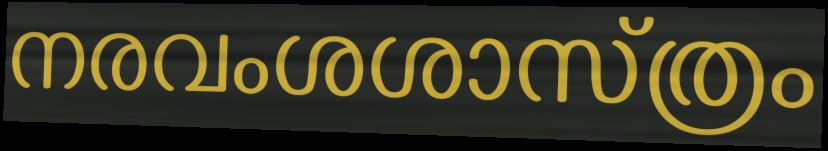
നരവംശശാസ്‌ത്രം